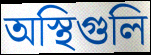
অস্থিগুলি